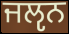
ਜਲੵਨ